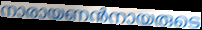
നാരായണൻനായരുടെ